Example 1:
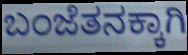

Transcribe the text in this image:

ಬಂಜೆತನಕ್ಕಾಗಿ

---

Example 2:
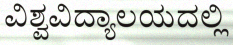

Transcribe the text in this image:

ವಿಶ್ವವಿದ್ಯಾಲಯದಲ್ಲಿ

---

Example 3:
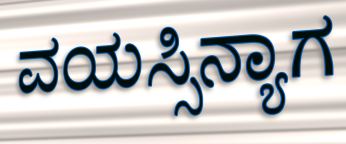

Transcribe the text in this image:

ವಯಸ್ಸಿನ್ಯಾಗ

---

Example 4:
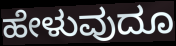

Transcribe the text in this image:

ಹೇಳುವುದೂ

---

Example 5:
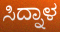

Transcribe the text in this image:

ಸಿದ್ನಾಳ